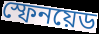
স্ফেনয়েড